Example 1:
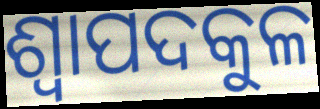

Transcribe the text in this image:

ଶ୍ୱାପଦକୁଳ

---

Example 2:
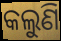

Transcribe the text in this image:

କଲୁଣି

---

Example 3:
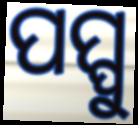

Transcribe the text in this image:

ପପ୍ପୁ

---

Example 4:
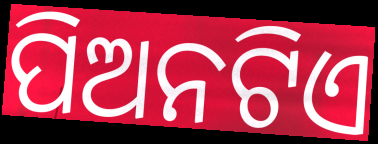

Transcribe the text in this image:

ପିଅନଟିଏ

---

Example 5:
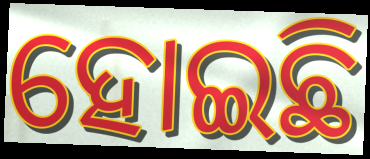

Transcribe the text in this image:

ହୋଇଛି